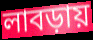
লাবড়ায়